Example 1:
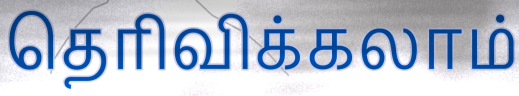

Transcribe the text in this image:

தெரிவிக்கலாம்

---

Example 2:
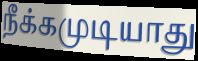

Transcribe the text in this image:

நீக்கமுடியாது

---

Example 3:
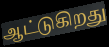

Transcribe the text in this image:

ஆட்டுகிறது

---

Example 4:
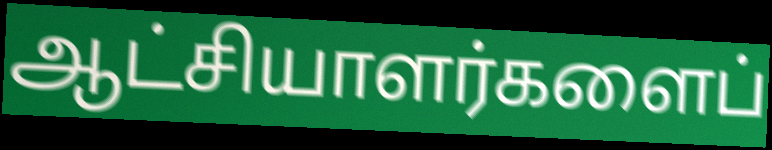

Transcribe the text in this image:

ஆட்சியாளர்களைப்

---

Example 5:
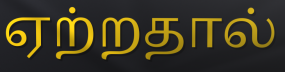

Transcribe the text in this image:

ஏற்றதால்